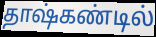
தாஷ்கண்டில்